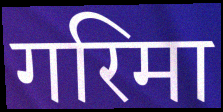
गरिमा